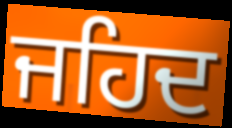
ਜਹਿਦ